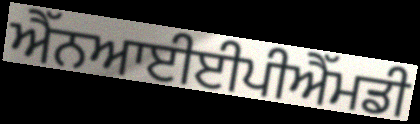
ਐੱਨਆਈਈਪੀਐੱਮਡੀ